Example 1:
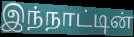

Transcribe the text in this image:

இந்நாட்டின்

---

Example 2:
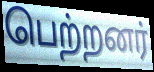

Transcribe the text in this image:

பெற்றனர்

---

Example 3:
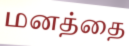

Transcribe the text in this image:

மனத்தை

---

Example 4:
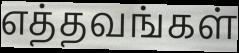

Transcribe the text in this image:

எத்தவங்கள்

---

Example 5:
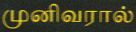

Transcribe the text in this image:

முனிவரால்